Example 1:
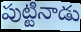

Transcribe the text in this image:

పుట్టినాడు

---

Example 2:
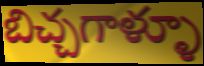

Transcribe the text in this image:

బిచ్చగాళ్ళూ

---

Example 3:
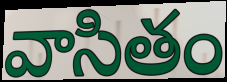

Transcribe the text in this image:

వాసితం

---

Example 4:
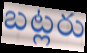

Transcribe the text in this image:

బట్లరు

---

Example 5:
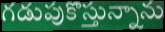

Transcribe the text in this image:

గడుపుకొస్తున్నాను